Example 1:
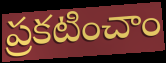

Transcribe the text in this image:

ప్రకటించాం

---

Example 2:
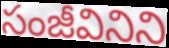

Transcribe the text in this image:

సంజీవినిని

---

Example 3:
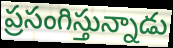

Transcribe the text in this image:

ప్రసంగిస్తున్నాడు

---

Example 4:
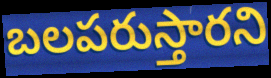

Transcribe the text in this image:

బలపరుస్తారని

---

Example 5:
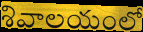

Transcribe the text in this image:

శివాలయంలో